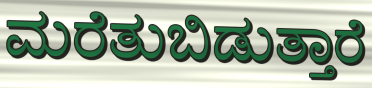
ಮರೆತುಬಿಡುತ್ತಾರೆ